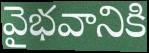
వైభవానికి